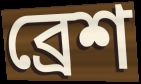
ব্রেশ